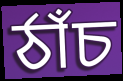
ঠাঁচ